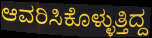
ಆವರಿಸಿಕೊಳ್ಳುತ್ತಿದ್ದ